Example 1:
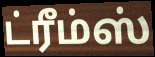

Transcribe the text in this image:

ட்ரீம்ஸ்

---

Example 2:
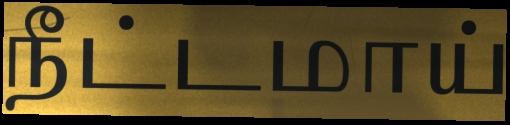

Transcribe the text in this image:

நீட்டமாய்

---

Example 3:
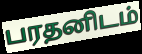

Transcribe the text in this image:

பரதனிடம்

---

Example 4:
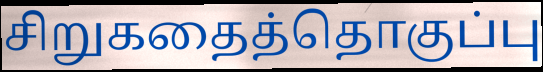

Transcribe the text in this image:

சிறுகதைத்தொகுப்பு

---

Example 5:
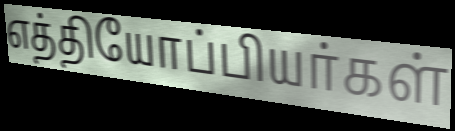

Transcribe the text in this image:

எத்தியோப்பியர்கள்